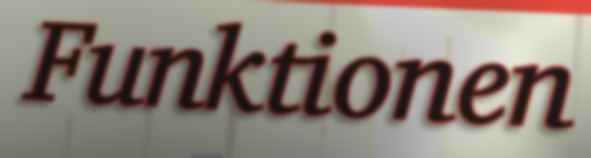
Funktionen